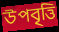
উপবৃত্তি